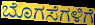
ಬೊಗಸೆಗಳಿಗೆ